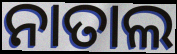
ନାତାଲ